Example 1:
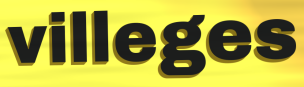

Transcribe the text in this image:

villeges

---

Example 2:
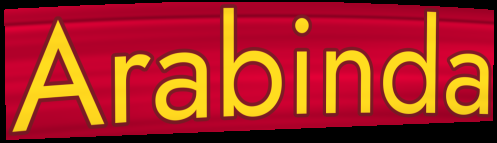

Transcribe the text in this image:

Arabinda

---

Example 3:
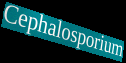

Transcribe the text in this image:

Cephalosporium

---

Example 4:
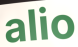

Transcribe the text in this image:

alio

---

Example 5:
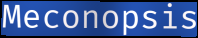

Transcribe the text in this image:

Meconopsis